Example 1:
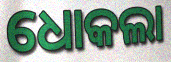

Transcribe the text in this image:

ଧୋକଲା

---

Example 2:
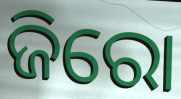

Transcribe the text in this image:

ଜିରୋ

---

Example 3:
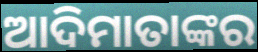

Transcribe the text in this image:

ଆଦିମାତାଙ୍କର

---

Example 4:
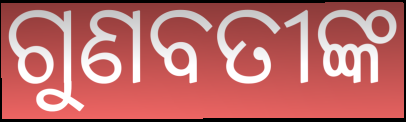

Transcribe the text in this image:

ଗୁଣବତୀଙ୍କ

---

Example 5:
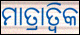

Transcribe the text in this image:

ମାତ୍ରାତ୍ଵିକ